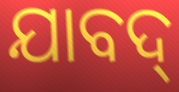
ଯାବଦ୍